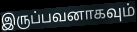
இருப்பவனாகவும்